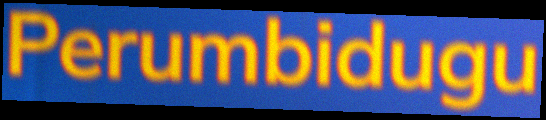
Perumbidugu